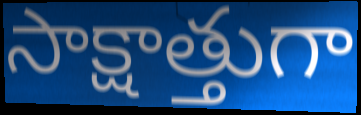
సాక్షాత్తుగా